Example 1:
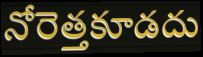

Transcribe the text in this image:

నోరెత్తకూడదు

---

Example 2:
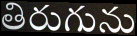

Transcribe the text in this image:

తిరుగును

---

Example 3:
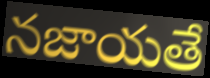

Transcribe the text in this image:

నజాయతే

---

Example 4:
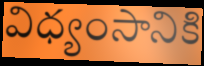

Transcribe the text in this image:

విధ్యంసానికి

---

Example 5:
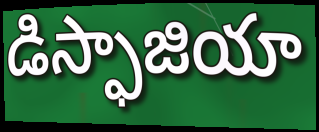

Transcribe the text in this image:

డిస్ఫాజియా